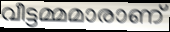
വീട്ടമ്മമാരാണ്